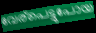
വേര്പെട്ടുപോയ